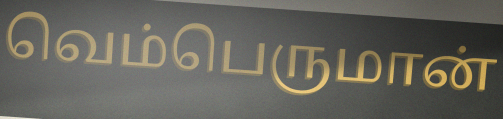
வெம்பெருமான்